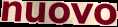
nuovo